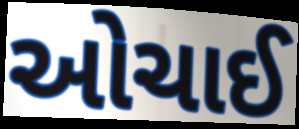
ઓચાઈ